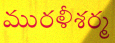
మురళీశర్మ